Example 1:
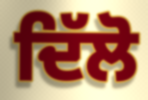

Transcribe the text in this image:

ਦਿੱਲੋ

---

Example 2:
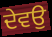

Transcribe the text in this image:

ਦੇਵਉ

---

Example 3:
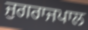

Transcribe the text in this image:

ਜੁਗਰਾਜਪਾਲ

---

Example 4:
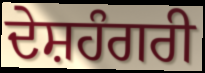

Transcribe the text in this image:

ਦੇਸ਼ਹੰਗਰੀ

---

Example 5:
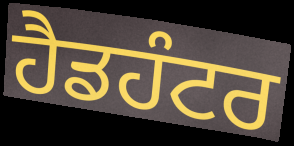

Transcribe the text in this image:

ਹੈਡਹੰਟਰ